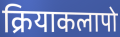
क्रियाकलापो